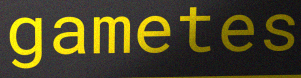
gametes